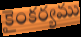
కైంకర్యము